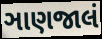
ઞાણજાલં